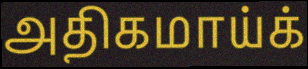
அதிகமாய்க்